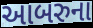
આબરુના